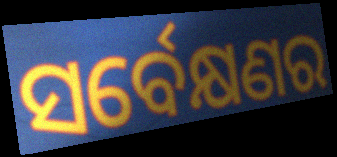
ସର୍ବେକ୍ଷଣର